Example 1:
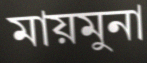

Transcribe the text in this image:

মায়মুনা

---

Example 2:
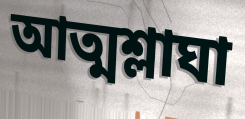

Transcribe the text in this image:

আত্মশ্লাঘা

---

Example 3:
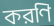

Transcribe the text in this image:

করণি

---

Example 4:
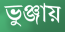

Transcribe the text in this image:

ভুঞ্জায়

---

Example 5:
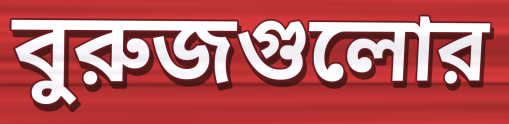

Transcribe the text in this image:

বুরুজগুলোর